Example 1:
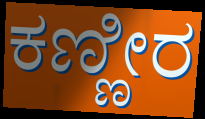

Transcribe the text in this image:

ಕಣ್ಣೀರ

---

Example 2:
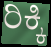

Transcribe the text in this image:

ರಿಕ್ಕಿ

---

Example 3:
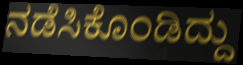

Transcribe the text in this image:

ನಡೆಸಿಕೊಂಡಿದ್ದು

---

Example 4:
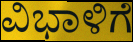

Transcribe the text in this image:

ವಿಭಾಳಿಗೆ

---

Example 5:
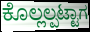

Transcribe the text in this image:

ಕೊಲ್ಲಲ್ಪಟ್ಟಾಗ